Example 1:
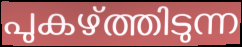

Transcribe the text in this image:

പുകഴ്ത്തിടുന്ന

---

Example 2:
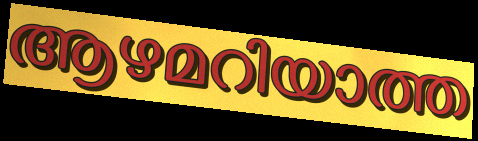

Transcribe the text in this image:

ആഴമറിയാത്ത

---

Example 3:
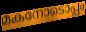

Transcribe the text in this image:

മകനോടൊപ്പം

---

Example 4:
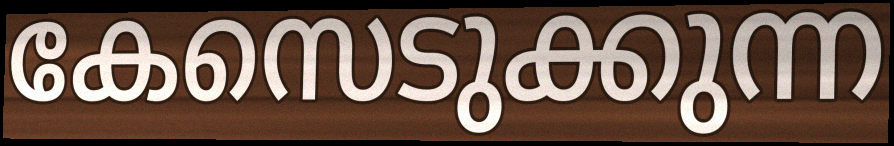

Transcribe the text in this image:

കേസെടുക്കുന്ന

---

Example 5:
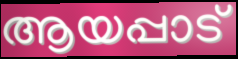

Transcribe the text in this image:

ആയപ്പാട്